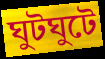
ঘুটঘুটে